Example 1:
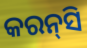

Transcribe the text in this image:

କରନ୍‌ସି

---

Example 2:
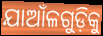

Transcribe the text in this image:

ଯାଆଁଳଗୁଡ଼ିକୁ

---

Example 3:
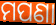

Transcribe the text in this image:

ମପଣା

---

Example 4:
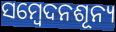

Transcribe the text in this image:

ସମ୍ବେଦନଶୂନ୍ୟ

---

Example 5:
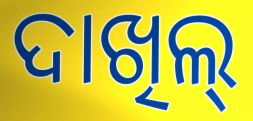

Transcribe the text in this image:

ଦାଖିଲ୍